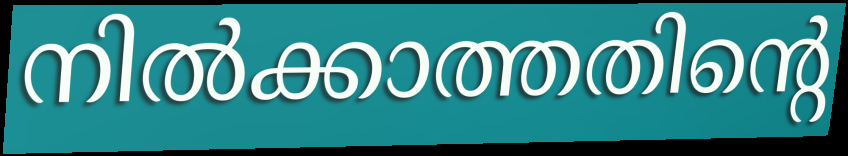
നിൽക്കാത്തതിന്റെ